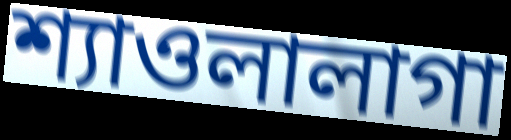
শ্যাওলালাগা